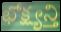
భోక్ష్యన్తి